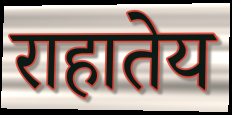
राहातेय